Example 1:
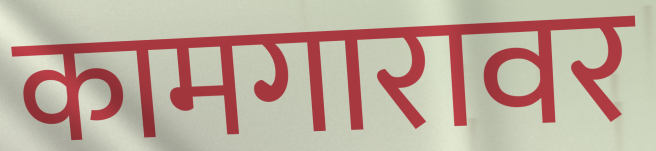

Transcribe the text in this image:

कामगारावर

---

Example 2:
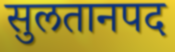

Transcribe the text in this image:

सुलतानपद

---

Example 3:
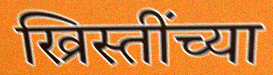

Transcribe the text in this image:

ख्रिस्तींच्या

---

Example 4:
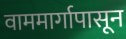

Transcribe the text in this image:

वाममार्गापासून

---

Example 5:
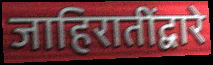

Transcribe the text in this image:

जाहिरातींद्वारे